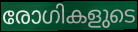
രോഗികളുടെ